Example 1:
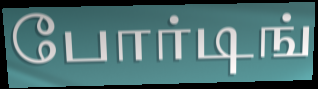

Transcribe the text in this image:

போர்டிங்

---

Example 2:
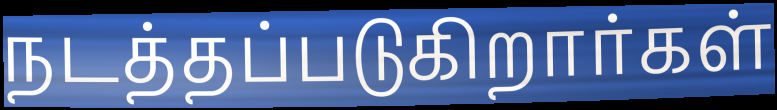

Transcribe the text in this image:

நடத்தப்படுகிறார்கள்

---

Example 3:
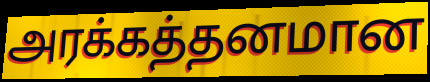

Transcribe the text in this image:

அரக்கத்தனமான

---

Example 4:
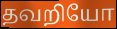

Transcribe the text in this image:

தவறியோ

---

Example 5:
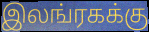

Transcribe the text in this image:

இலங்ரகக்கு